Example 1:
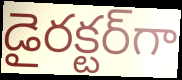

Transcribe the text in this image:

డైరక్టర్‌గా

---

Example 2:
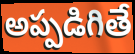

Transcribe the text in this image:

అప్పడిగితే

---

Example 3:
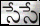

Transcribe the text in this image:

సేసే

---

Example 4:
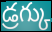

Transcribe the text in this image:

డ్రగ్కు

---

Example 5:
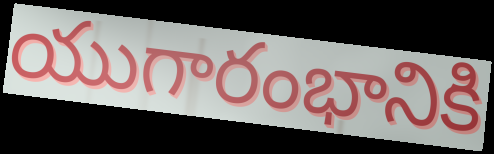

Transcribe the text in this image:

యుగారంభానికి